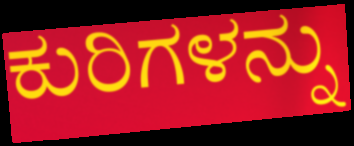
ಕುರಿಗಳನ್ನು